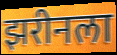
झरीनला